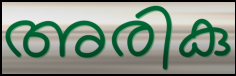
അരികു